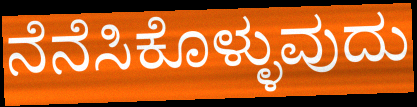
ನೆನೆಸಿಕೊಳ್ಳುವುದು